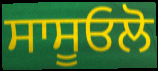
ਸਾਸੂਓਲੋ